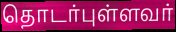
தொடர்புள்ளவர்